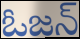
ఓజన్